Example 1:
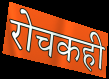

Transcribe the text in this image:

रोचकही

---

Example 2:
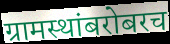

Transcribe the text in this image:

ग्रामस्थांबरोबरच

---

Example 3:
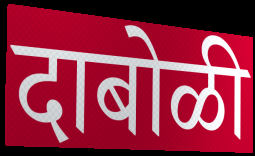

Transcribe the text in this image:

दाबोळी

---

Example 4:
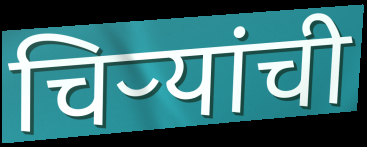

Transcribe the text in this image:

चिऱ्यांची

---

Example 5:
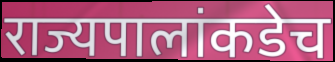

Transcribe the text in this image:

राज्यपालांकडेच